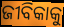
ଜୀବିକାକୁ